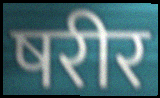
षरीर